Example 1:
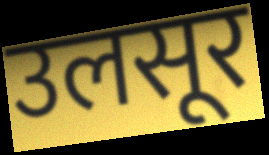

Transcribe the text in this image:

उलसूर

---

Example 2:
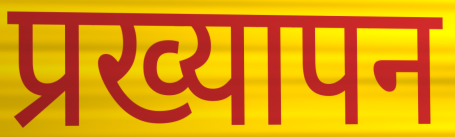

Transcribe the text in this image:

प्रख्यापन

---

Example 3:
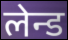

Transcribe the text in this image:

लेन्ड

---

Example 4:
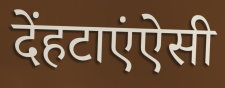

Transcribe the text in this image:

देंहटाएंऐसी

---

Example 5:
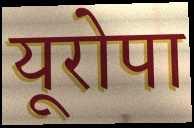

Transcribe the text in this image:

यूरोपा